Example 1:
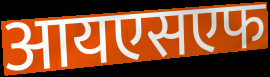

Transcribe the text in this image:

आयएसएफ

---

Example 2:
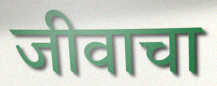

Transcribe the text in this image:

जीवाचा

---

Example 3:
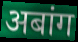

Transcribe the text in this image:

अबांग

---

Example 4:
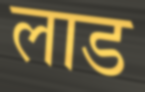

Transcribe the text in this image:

लाड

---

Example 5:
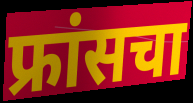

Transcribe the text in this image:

फ्रांसचा